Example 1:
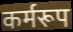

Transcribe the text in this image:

कर्मरूप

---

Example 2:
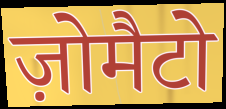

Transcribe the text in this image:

ज़ोमैटो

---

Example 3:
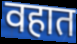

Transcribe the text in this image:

वहात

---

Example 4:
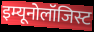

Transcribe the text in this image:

इम्यूनोलॉजिस्ट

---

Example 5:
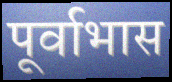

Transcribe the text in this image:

पूर्वाभास